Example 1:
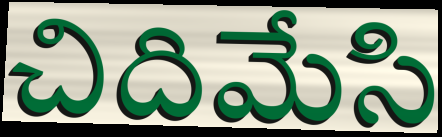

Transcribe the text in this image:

చిదిమేసి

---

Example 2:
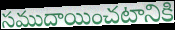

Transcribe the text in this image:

సముదాయించటానికి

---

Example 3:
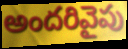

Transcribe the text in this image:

అందరివైపు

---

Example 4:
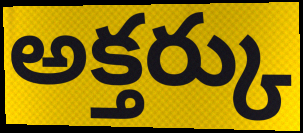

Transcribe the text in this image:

అక్తర్కు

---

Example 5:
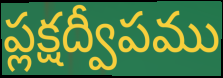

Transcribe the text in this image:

ప్లక్షద్వీపము